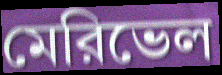
মেরিভেল